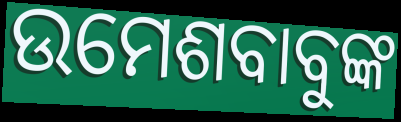
ଉମେଶବାବୁଙ୍କ